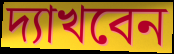
দ্যাখবেন